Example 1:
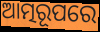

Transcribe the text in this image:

ଆତ୍ମରୂପରେ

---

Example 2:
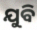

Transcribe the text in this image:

ଯୁବି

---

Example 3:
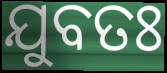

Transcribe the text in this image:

ଯୁବତଃ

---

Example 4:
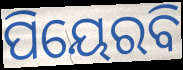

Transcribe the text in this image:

ପିୟେରବି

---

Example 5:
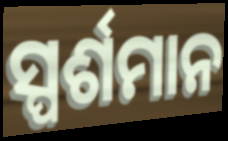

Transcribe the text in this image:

ସ୍ପର୍ଶମାନ